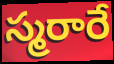
స్మరారే